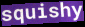
squishy